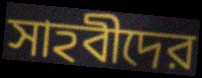
সাহবীদের